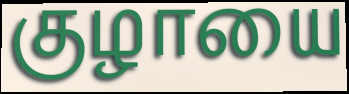
குழாயை